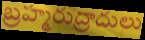
బ్రహ్మరుద్రాదులు